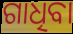
ଗାଧିବା